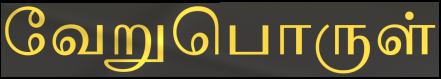
வேறுபொருள்